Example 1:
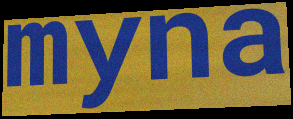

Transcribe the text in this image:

myna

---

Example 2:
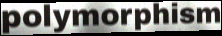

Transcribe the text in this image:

polymorphism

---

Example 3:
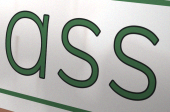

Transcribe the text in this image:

ass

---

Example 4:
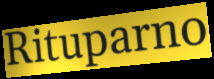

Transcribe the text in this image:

Rituparno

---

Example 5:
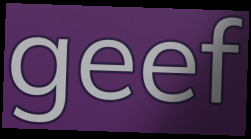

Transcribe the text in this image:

geef